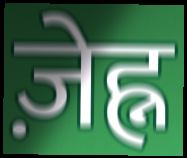
ज़ेह्न